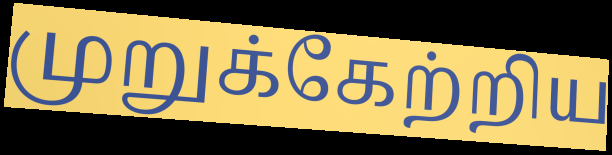
முறுக்கேற்றிய